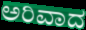
ಅರಿವಾದ